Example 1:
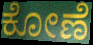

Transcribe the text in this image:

ಕೋಣೆ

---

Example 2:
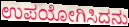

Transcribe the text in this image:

ಉಪಯೋಗಿಸಿದನು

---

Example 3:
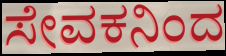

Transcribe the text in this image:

ಸೇವಕನಿಂದ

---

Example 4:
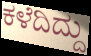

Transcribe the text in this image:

ಕಳೆದಿದ್ದು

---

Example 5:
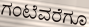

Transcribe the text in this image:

ಗಂಟೆವರೆಗೂ